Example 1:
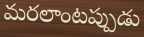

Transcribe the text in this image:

మరలాంటప్పుడు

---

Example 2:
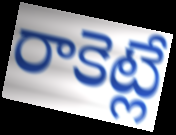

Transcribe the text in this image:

రాకెట్లే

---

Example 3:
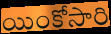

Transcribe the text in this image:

యింకోసారి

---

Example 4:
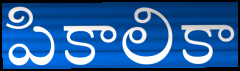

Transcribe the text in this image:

పికాలికా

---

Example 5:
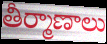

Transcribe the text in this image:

తీర్మాణాలు